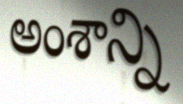
అంశాన్ని